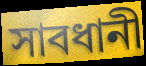
সাবধানী